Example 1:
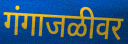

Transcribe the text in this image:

गंगाजळीवर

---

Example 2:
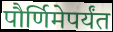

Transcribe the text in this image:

पौर्णिमेपर्यंत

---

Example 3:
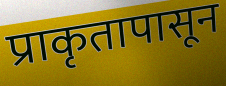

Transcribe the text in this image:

प्राकृतापासून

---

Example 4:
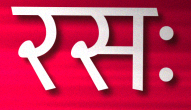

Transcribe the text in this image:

रसः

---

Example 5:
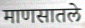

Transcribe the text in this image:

माणसातले